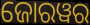
ଜୋରୱର